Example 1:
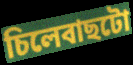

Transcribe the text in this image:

চিলেবাছটো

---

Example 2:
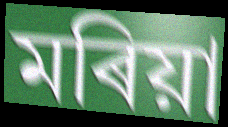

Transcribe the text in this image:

মৰিয়া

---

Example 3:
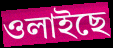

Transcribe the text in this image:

ওলাইছে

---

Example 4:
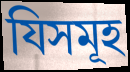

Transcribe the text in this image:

যিসমূহ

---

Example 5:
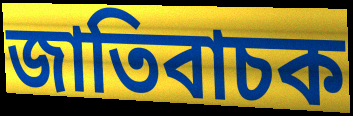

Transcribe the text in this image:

জাতিবাচক